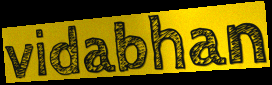
vidabhan